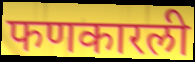
फणकारली